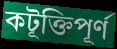
কটূক্তিপূর্ণ